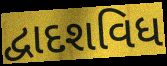
દ્વાદશવિધ